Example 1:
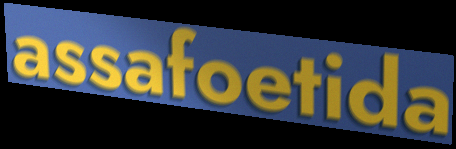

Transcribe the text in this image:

assafoetida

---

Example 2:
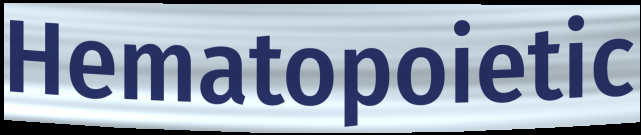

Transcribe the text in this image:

Hematopoietic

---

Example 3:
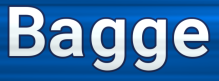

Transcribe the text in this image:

Bagge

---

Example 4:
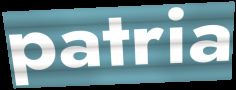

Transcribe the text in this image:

patria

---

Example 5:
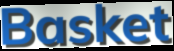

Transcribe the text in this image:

Basket